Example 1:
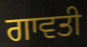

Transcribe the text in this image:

ਗਾਵਤੀ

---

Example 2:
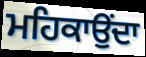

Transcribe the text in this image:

ਮਹਿਕਾਉਂਦਾ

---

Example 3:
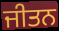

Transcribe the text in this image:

ਜੀਤਨ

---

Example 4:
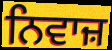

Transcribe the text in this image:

ਨਿਵਾਜ਼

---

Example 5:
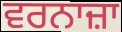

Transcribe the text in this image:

ਵਰਨਾਜ਼ਾ